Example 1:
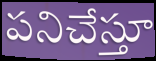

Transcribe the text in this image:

పనిచేస్తూ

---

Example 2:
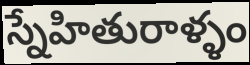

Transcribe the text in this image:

స్నేహితురాళ్ళం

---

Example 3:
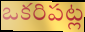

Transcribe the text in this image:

ఒకరిపట్ల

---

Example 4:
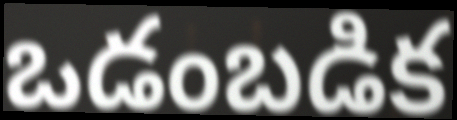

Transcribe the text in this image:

ఒడంబడిక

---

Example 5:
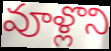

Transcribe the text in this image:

వూళ్లొని